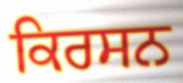
ਕਿਰਸਨ